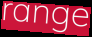
range